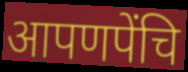
आपणपेंचि